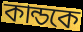
কান্ডকে